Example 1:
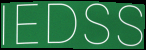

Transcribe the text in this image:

IEDSS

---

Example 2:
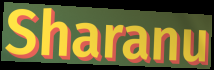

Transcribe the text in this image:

Sharanu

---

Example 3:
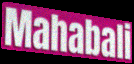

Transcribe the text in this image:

Mahabali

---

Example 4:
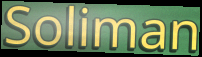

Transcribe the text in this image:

Soliman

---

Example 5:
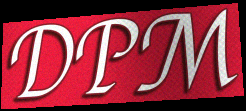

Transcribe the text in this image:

DPM